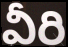
వీరి